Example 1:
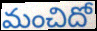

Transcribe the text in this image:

మంచిదో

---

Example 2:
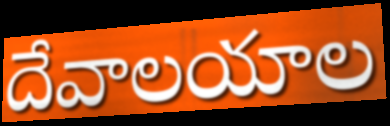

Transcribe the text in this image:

దేవాలయాల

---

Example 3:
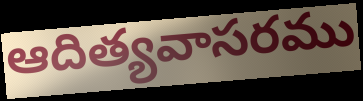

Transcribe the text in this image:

ఆదిత్యవాసరము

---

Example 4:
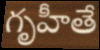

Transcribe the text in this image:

గృహీతే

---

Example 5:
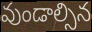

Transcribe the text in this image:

వుండాల్సిన